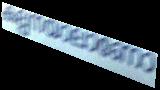
കല്പനയാലാണോ